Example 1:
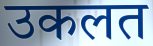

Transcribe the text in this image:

उकलत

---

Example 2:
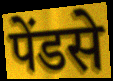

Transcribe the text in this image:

पेंडसे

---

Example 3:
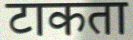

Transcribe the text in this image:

टाकता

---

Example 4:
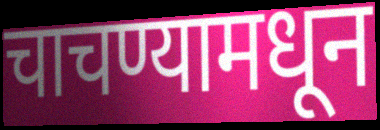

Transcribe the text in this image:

चाचण्यामधून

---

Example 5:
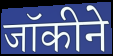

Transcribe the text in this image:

जॉकीने